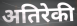
अतिरेकी